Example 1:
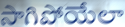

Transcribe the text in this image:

సాగిపోయేలా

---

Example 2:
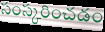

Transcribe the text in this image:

సంస్కరించడం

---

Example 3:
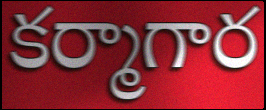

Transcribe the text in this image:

కర్మాగార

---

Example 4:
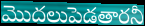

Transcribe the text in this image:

మొదలుపెడతారనీ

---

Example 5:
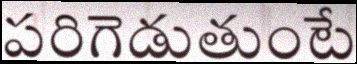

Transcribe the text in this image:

పరిగెడుతుంటే